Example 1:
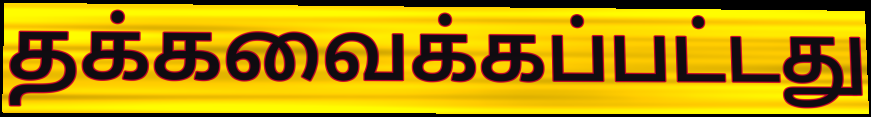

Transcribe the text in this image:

தக்கவைக்கப்பட்டது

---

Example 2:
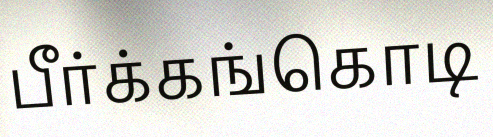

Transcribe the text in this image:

பீர்க்கங்கொடி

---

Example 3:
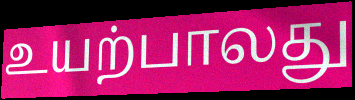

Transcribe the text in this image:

உயற்பாலது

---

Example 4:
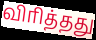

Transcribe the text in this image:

விரித்தது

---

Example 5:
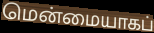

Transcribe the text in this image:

மென்மையாகப்